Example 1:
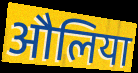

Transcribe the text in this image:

औलिया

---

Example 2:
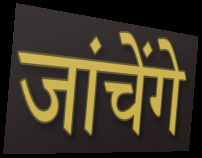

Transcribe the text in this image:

जांचेंगे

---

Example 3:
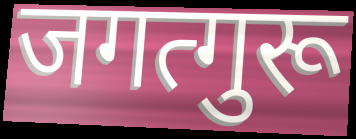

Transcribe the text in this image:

जगत्गुरू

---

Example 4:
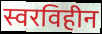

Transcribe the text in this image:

स्वरविहीन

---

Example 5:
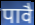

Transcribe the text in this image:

पावै